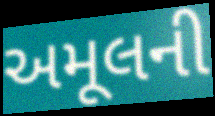
અમૂલની